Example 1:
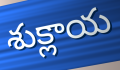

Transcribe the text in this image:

శుక్లాయ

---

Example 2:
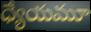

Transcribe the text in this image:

ధ్యేయమూ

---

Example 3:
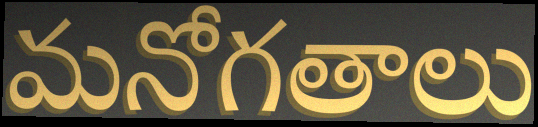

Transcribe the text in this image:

మనోగతాలు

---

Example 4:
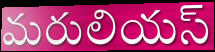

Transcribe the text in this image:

మరులియస్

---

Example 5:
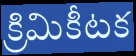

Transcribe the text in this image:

క్రిమికీటక